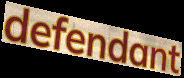
defendant